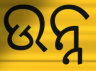
ଉନ୍ନ